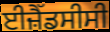
ਈਜ਼ੈੱਡਸੀਸੀ